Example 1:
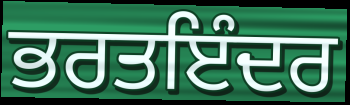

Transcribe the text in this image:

ਭਰਤਇੰਦਰ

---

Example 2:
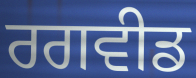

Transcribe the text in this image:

ਰਗਵੀਡ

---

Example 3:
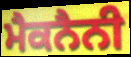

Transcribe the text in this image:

ਮੈਕਨੈਨੀ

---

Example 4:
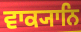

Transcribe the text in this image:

ਵਾਕ੍ਯਾਨਿ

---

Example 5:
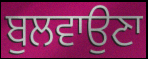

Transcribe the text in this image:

ਬੁਲਵਾਉਣਾ